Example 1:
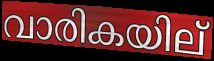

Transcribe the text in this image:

വാരികയില്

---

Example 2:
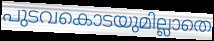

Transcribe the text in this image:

പുടവകൊടയുമില്ലാതെ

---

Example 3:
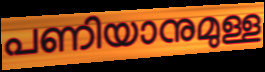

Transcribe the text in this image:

പണിയാനുമുള്ള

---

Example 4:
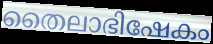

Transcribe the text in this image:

തൈലാഭിഷേകം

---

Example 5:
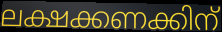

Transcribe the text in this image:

ലക്ഷക്കണക്കിന്